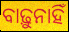
ବାଢ଼ୁନାହିଁ